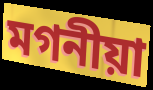
মগনীয়া